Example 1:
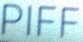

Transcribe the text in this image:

PIFF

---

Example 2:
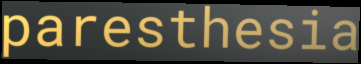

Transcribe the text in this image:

paresthesia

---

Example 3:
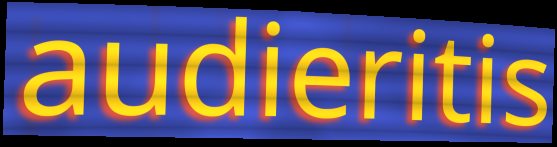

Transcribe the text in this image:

audieritis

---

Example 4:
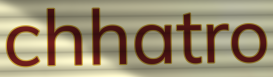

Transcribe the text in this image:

chhatro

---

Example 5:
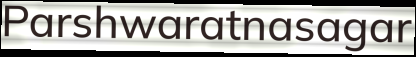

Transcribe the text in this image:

Parshwaratnasagar